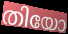
തിയോ